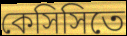
কেসিসিতে